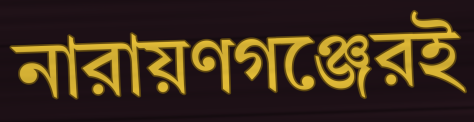
নারায়ণগঞ্জেরই